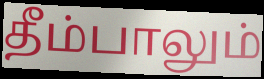
தீம்பாலும்